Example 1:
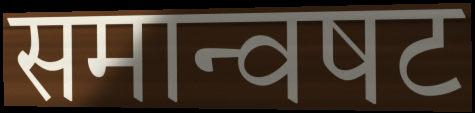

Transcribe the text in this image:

समान्वषट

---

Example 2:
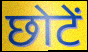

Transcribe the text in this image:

छोटें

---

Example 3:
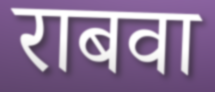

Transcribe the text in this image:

राबवा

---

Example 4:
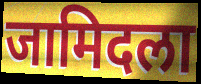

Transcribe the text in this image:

जामिदला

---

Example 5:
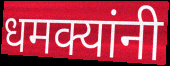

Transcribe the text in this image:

धमक्यांनी